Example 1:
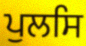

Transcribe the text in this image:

ਪੁਲਸਿ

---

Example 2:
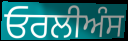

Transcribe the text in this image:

ਓਰਲੀਅੰਸ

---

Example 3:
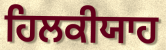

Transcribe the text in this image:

ਹਿਲਕੀਯਾਹ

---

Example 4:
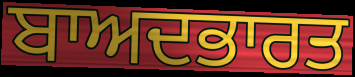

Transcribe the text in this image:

ਬਾਅਦਭਾਰਤ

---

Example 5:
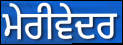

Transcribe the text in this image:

ਮੇਰੀਵੇਦਰ